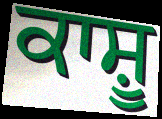
ਕਾਸ਼ੂ